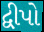
દ્વીપો